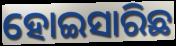
ହୋଇସାରିଛ